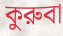
কুরুবা